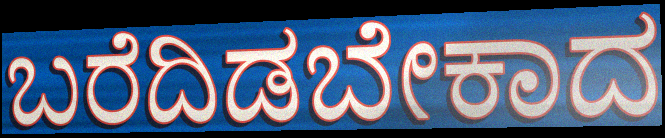
ಬರೆದಿಡಬೇಕಾದ